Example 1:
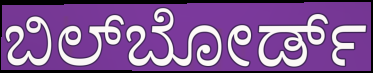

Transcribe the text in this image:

ಬಿಲ್‌ಬೋರ್ಡ್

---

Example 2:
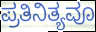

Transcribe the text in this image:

ಪ್ರತಿನಿತ್ಯವೂ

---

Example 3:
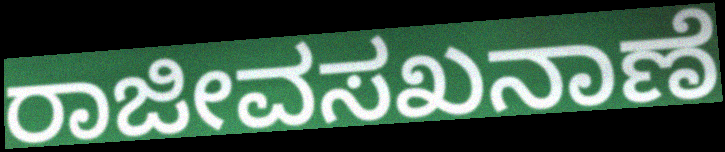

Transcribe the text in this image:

ರಾಜೀವಸಖನಾಣೆ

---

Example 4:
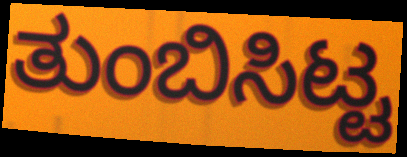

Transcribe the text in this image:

ತುಂಬಿಸಿಟ್ಟ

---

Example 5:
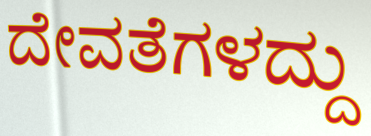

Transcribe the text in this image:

ದೇವತೆಗಳದ್ದು